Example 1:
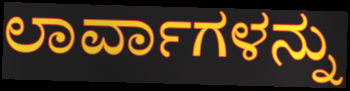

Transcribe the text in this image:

ಲಾರ್ವಾಗಳನ್ನು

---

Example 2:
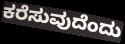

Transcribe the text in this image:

ಕರೆಸುವುದೆಂದು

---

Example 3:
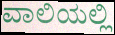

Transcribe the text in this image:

ವಾಲಿಯಲ್ಲಿ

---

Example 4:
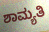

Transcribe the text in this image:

ಶಾಮ್ಯತಿ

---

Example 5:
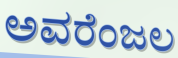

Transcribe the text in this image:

ಅವರೆಂಜಲ